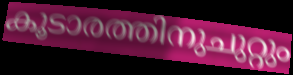
കൂടാരത്തിനുചുറ്റും